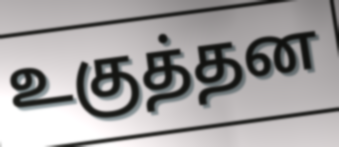
உகுத்தன